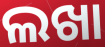
ଲଖା